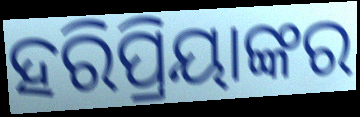
ହରିପ୍ରିୟାଙ୍କର